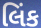
લિંક